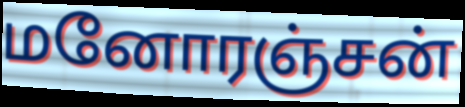
மனோரஞ்சன்